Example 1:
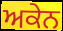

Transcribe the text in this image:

ਅਕੇਨ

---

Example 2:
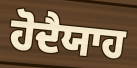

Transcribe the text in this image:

ਹੋਦੈਯਾਹ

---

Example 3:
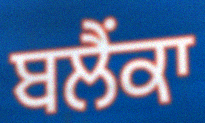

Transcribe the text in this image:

ਬਲੈਂਕਾ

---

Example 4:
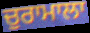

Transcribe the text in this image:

ਚੁਰਾਮਾਲਾ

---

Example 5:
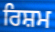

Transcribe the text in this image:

ਰਿਸ਼ਮ